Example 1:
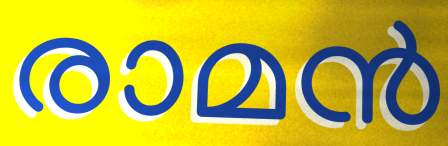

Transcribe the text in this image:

രാമൻ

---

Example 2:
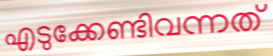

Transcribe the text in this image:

എടുക്കേണ്ടിവന്നത്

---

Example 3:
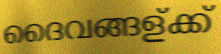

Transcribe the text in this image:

ദൈവങ്ങള്ക്ക്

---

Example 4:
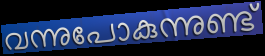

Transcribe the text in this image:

വന്നുപോകുന്നുണ്ട്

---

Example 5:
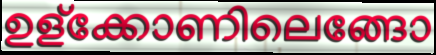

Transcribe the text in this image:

ഉള്ക്കോണിലെങ്ങോ